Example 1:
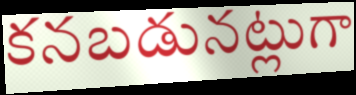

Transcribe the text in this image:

కనబడునట్లుగా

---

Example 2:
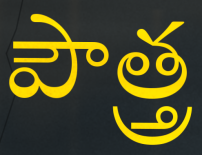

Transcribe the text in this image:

పౌత్త్ర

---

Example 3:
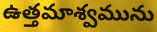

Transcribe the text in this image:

ఉత్తమాశ్వమును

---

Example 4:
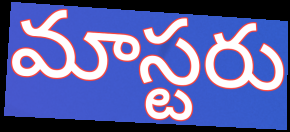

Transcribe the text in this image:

మాస్టరు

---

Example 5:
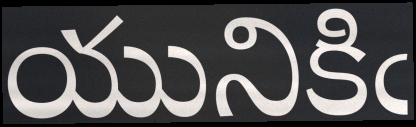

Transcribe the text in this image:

యునికిఁ